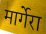
मार्गेरा